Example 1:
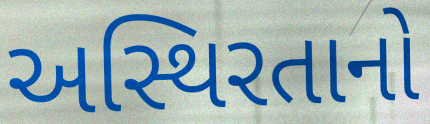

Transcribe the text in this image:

અસ્થિરતાનો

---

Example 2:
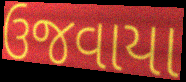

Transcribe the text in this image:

ઉજવાયા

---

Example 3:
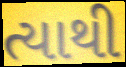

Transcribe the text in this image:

ત્યાથી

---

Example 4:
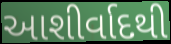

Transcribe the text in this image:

આશીર્વાદથી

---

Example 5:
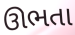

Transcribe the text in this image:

ઊભતા